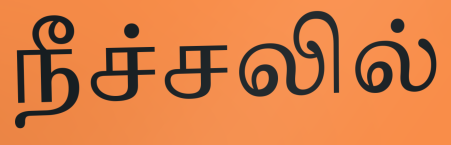
நீச்சலில்